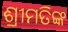
ଶ୍ରୀମତିଙ୍କ